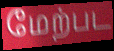
மேற்பட